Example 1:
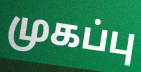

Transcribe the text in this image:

முகப்பு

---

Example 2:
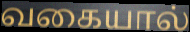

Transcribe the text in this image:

வகையால்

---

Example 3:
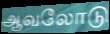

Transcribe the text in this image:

ஆவலோடு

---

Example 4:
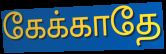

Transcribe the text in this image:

கேக்காதே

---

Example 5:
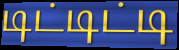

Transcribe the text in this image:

டிட்டிட்டி